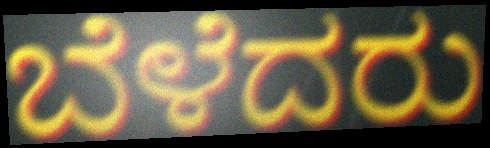
ಬೆಳೆದರು